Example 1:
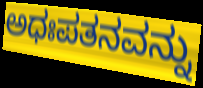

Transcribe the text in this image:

ಅಧಃಪತನವನ್ನು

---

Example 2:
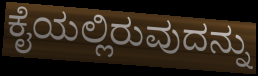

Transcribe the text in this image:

ಕೈಯಲ್ಲಿರುವುದನ್ನು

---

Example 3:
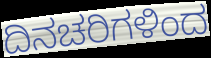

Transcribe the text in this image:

ದಿನಚರಿಗಳಿಂದ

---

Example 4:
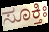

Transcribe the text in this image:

ಸೂಕ್ತಿಃ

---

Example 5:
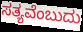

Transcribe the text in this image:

ಸತ್ಯವೆಂಬುದು